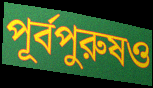
পূর্বপুরুষও